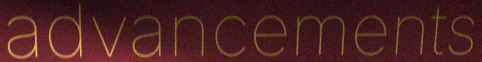
advancements